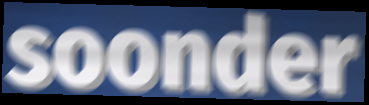
soonder